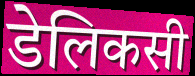
डेलिकसी